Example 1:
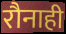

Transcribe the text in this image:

रौनाही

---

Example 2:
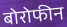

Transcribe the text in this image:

बोरोफीन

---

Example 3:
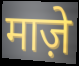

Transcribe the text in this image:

माज़े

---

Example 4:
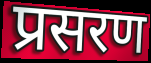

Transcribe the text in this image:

प्रसरण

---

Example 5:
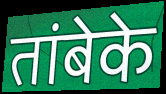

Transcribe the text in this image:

तांबेके